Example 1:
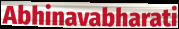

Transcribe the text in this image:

Abhinavabharati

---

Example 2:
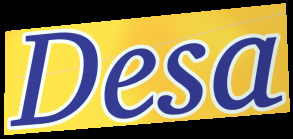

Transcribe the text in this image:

Desa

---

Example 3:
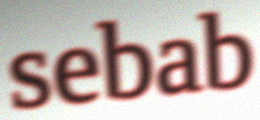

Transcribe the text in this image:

sebab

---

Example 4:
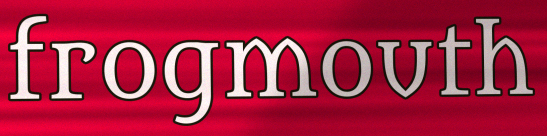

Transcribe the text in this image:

frogmouth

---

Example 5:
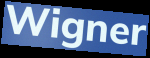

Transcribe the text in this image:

Wigner